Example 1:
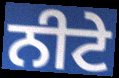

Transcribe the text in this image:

ਨੀਟੇ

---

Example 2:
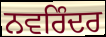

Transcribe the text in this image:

ਨਵਰਿੰਦਰ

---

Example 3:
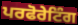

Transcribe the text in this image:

ਪਰਫੋਰੇਟਿੰਗ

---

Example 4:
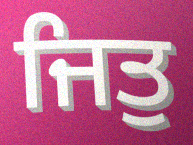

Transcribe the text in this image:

ਜਿਤੁ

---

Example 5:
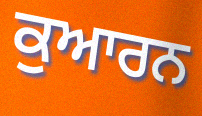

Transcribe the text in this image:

ਕੁਆਰਨ